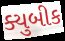
ક્યુબીક